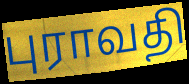
புராவதி